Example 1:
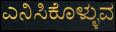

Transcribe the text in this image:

ಎನಿಸಿಕೊಳ್ಳುವ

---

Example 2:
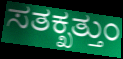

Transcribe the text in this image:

ಸತಕ್ಖತ್ತುಂ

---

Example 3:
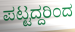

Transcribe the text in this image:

ಪಟ್ಟದ್ದರಿಂದ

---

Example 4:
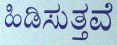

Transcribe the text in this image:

ಹಿಡಿಸುತ್ತವೆ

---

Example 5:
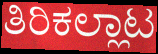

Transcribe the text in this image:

ತಿರಿಕಲ್ಲಾಟ